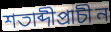
শতাব্দীপ্রাচীন